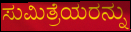
ಸುಮಿತ್ರೆಯರನ್ನು